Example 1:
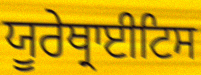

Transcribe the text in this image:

ਯੂਰੇਥ੍ਰਾਈਟਿਸ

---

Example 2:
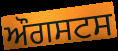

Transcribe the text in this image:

ਔਗਸਟਸ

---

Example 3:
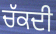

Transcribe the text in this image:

ਚੱਕਦੀ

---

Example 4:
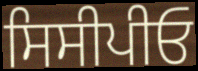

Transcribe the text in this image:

ਸਿਸੀਪੀਓ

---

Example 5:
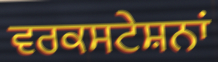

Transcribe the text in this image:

ਵਰਕਸਟੇਸ਼ਨਾਂ